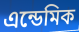
এন্ডেমিক